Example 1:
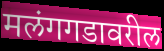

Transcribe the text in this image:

मलंगगडावरील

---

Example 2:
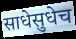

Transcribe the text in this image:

साधेसुधेच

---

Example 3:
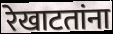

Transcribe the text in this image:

रेखाटतांना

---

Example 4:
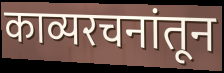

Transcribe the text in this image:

काव्यरचनांतून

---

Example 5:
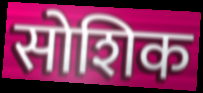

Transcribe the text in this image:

सोशिक